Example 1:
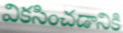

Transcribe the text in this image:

వికసించడానికి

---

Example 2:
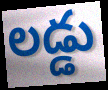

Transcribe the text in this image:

లడ్డు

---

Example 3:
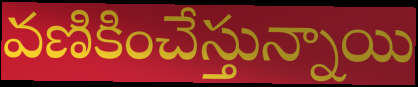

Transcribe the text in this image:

వణికించేస్తున్నాయి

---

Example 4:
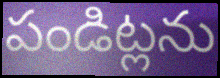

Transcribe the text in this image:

పండిట్లను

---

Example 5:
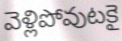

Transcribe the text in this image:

వెళ్లిపోవుటకై